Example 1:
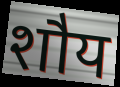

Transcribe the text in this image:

शौय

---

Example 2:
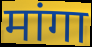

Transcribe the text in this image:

मांगा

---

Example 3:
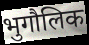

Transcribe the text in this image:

भुगौलिक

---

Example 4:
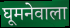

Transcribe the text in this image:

घूमनेवाला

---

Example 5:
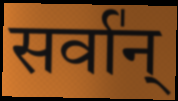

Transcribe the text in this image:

सर्वा॑न्